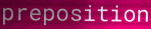
preposition